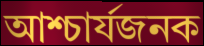
আশ্চার্যজনক